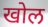
खोल